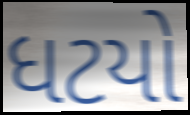
ધટયો